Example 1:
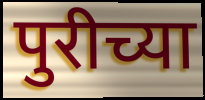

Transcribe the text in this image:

पुरीच्या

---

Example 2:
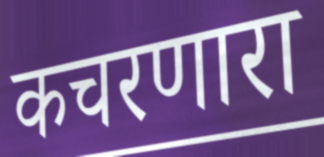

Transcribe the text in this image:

कचरणारा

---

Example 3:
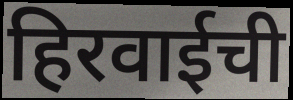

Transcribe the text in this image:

हिरवाईची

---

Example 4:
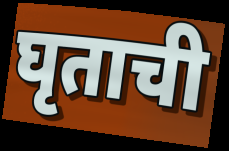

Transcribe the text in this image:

घृताची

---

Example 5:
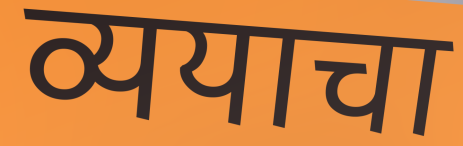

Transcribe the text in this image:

व्ययाचा